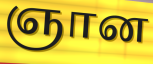
ஞான